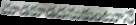
చూడకూడదనుకుంటూనే